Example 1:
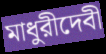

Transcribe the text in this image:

মাধুরীদেবী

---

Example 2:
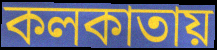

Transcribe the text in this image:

কলকাতায়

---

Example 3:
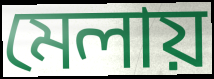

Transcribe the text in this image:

মেলায়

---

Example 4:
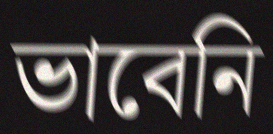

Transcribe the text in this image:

ভাবেনি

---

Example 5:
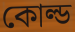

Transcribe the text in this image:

কোল্ড